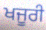
ਖਜੂਰੀ